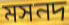
মসনদ